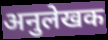
अनुलेखक